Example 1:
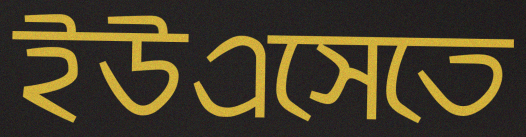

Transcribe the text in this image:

ইউএসেতে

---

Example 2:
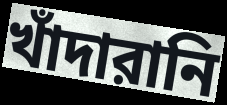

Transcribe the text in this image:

খাঁদারানি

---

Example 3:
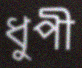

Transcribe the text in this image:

ধুপী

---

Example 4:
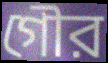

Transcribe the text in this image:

গৌর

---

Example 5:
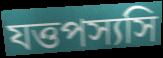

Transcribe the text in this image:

যত্তপস্যসি